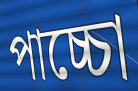
পাচ্চো